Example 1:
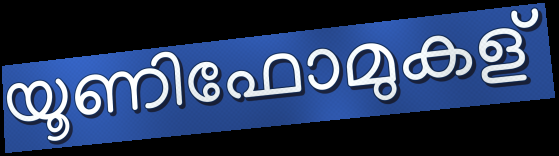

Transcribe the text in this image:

യൂണിഫോമുകള്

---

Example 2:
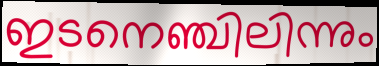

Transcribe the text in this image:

ഇടനെഞ്ചിലിന്നും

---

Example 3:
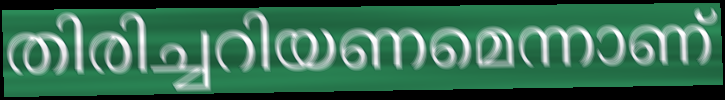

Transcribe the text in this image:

തിരിച്ചറിയണമെന്നാണ്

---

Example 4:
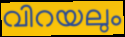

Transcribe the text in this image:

വിറയലും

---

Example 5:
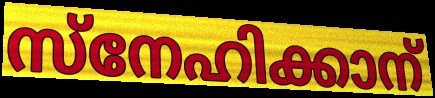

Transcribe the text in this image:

സ്നേഹിക്കാന്